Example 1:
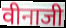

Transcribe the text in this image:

वीनाजी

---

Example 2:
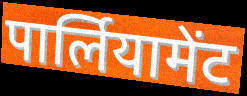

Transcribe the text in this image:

पार्लियामेंट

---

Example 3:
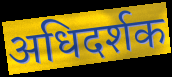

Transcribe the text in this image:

अधिदर्शक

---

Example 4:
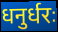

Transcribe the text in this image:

धनुर्धरः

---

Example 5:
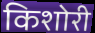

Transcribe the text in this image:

किशोरी